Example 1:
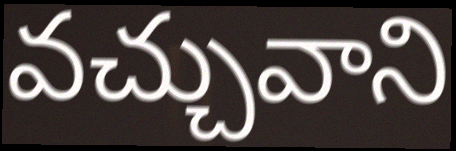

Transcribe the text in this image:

వచ్చువాని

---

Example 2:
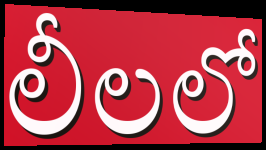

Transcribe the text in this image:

లీలలో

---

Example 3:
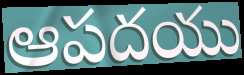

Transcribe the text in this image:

ఆపదయు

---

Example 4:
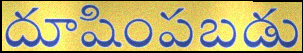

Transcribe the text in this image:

దూషింపబడు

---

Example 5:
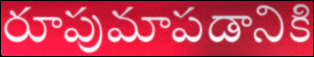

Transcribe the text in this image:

రూపుమాపడానికి